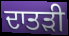
ਦਾਤੜੀ